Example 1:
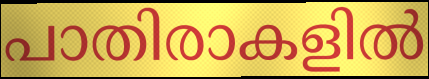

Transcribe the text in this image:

പാതിരാകളിൽ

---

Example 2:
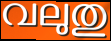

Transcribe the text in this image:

വലുതു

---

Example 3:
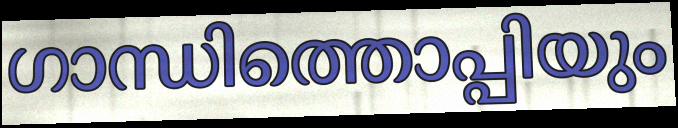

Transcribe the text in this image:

ഗാന്ധിത്തൊപ്പിയും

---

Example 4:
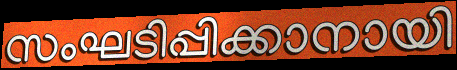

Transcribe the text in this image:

സംഘടിപ്പിക്കാനായി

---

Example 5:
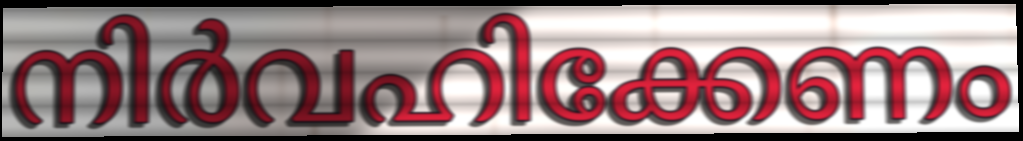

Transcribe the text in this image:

നിർവഹിക്കേണം